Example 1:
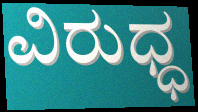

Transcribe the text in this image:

ವಿರುಧ್ಧ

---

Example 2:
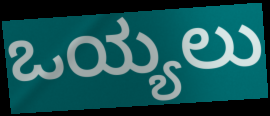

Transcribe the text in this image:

ಒಯ್ಯಲು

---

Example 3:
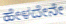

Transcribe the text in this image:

ಹೇಳದೇನೇ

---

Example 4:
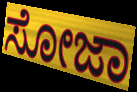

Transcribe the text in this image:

ಸೋಜಾ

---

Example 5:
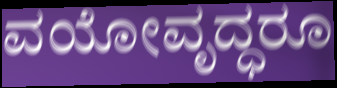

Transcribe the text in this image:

ವಯೋವೃದ್ಧರೂ